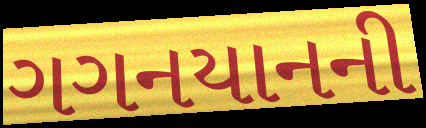
ગગનયાનની